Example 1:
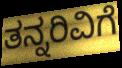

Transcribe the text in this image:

ತನ್ನರಿವಿಗೆ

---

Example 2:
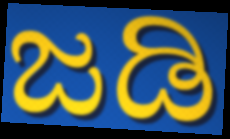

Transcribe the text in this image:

ಜಡಿ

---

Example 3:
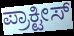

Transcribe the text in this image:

ಪ್ರಾಕ್ಟೀಸ್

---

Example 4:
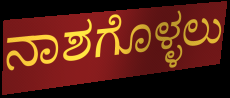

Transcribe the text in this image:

ನಾಶಗೊಳ್ಳಲು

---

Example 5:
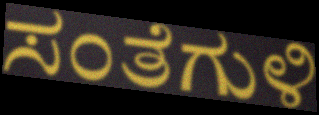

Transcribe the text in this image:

ಸಂತೆಗುಳಿ